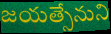
జయత్సేనుని